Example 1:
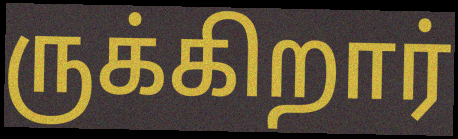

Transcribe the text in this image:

ருக்கிறார்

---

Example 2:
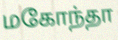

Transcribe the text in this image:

மகோந்தா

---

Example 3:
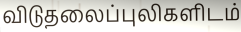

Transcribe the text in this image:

விடுதலைப்புலிகளிடம்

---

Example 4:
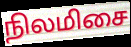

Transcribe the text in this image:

நிலமிசை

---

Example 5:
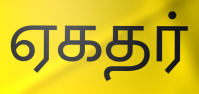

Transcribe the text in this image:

ஏகதர்